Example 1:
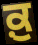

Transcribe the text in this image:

ਕ਼ੁ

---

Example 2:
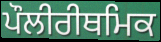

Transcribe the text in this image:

ਪੌਲੀਰੀਥਮਿਕ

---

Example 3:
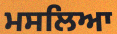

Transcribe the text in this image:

ਮਸਲਿਆ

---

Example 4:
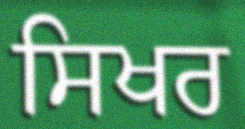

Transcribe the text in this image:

ਸਿਖਰ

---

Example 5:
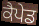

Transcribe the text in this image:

ਕੈਪੇਡ